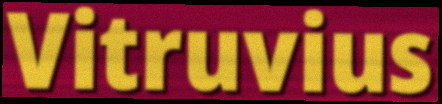
Vitruvius